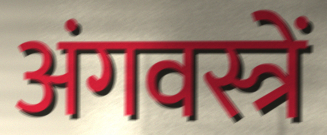
अंगवस्त्रें